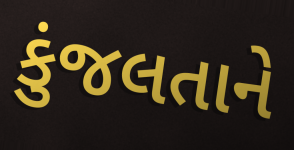
કુંજલતાને